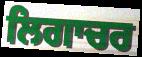
ਲਿਗਾਚਰ